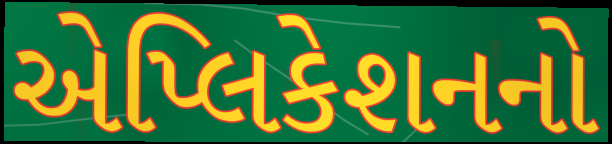
એપ્લિકેશનનો